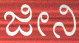
ಜೀನಿ